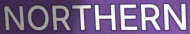
NORTHERN